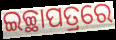
ଇଚ୍ଛାପତ୍ରରେ